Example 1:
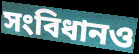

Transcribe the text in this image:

সংবিধানও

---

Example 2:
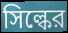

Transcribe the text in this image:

সিল্কের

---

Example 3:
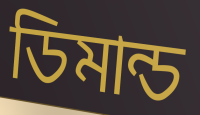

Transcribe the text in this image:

ডিমান্ড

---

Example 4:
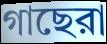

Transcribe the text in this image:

গাছেরা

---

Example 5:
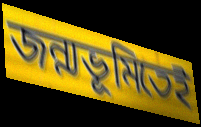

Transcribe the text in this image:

জন্মভূমিতেই